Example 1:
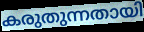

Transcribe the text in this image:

കരുതുന്നതായി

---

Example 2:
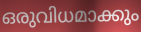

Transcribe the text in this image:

ഒരുവിധമാക്കും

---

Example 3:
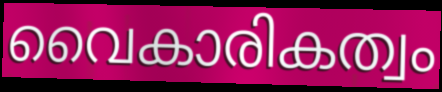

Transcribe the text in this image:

വൈകാരികത്വം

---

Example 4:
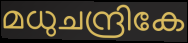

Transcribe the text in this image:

മധുചന്ദ്രികേ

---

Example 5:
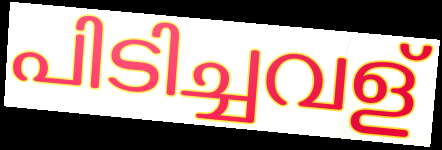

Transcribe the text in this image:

പിടിച്ചവള്